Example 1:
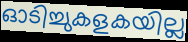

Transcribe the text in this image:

ഓടിച്ചുകളകയില്ല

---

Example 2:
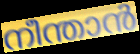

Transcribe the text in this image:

നീന്താൻ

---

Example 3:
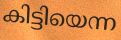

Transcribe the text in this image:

കിട്ടിയെന്ന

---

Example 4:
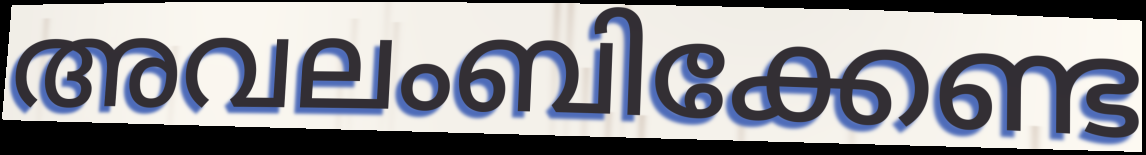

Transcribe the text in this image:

അവലംബിക്കേണ്ട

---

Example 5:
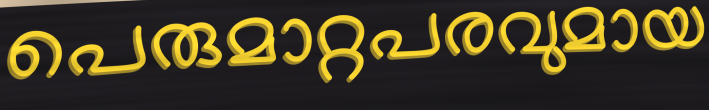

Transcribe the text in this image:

പെരുമാറ്റപരവുമായ